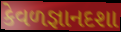
કેવળજ્ઞાનદશા